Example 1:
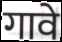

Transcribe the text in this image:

गावे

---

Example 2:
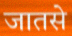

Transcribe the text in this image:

जातसे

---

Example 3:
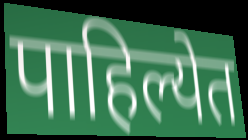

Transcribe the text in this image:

पाहिल्येत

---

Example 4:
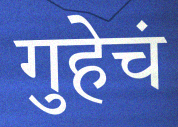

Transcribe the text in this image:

गुहेचं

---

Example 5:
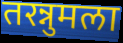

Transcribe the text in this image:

तरन्नुमला